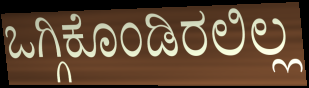
ಒಗ್ಗಿಕೊಂಡಿರಲಿಲ್ಲ